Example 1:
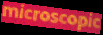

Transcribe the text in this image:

microscopic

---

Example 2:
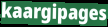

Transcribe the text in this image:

kaargipages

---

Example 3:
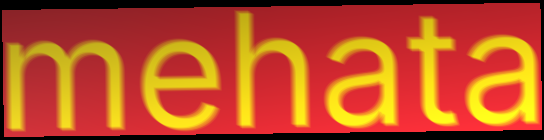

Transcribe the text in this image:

mehata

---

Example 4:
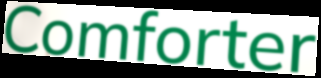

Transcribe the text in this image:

Comforter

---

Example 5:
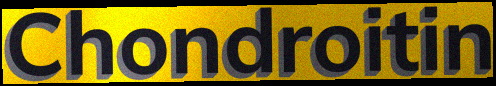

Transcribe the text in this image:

Chondroitin